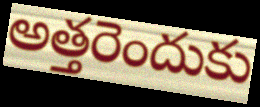
అత్తరెందుకు